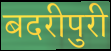
बदरीपुरी